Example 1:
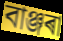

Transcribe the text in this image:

বাঞ্জৰা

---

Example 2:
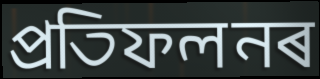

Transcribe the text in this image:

প্ৰতিফলনৰ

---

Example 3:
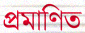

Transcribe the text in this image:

প্ৰমাণিত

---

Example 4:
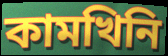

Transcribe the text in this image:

কামখিনি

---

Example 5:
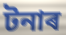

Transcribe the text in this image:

টনাৰ